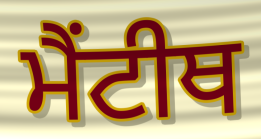
ਮੈਂਟੀਥ